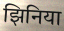
झिनिया